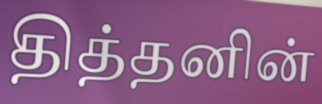
தித்தனின்